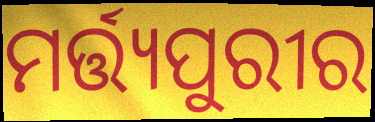
ମର୍ତ୍ତ୍ୟପୁରୀର